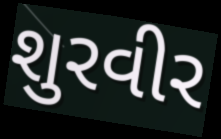
શુરવીર